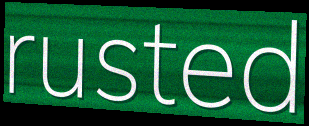
rusted